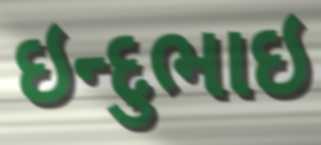
ઇન્દુભાઇ